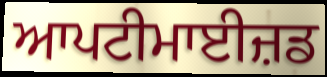
ਆਪਟੀਮਾਈਜ਼ਡ